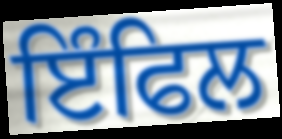
ਇੰਫਿਲ